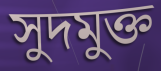
সুদমুক্ত